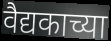
वैद्यकाच्या